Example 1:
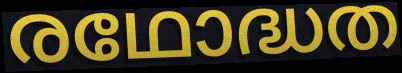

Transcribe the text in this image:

രഥോദ്ധത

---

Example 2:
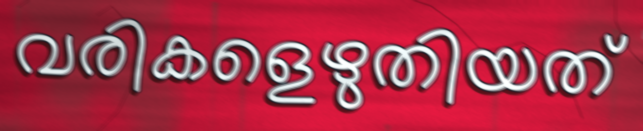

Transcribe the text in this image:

വരികളെഴുതിയത്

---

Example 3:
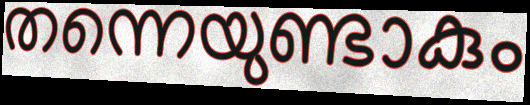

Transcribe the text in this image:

തന്നെയുണ്ടാകും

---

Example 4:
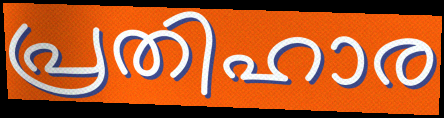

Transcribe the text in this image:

പ്രതിഹാര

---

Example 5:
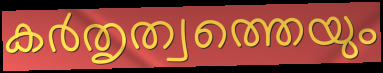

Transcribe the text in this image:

കർതൃത്വത്തെയും